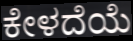
ಕೇಳದೆಯೆ